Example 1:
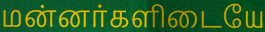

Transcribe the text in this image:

மன்னர்களிடையே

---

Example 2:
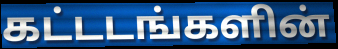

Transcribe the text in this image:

கட்டடங்களின்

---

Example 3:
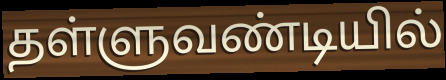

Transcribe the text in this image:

தள்ளுவண்டியில்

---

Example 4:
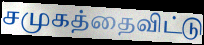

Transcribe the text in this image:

சமுகத்தைவிட்டு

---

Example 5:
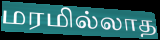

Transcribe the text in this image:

மரமில்லாத